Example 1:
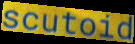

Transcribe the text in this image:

scutoid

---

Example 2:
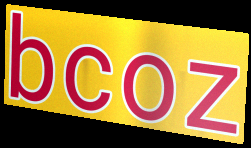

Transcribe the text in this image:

bcoz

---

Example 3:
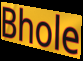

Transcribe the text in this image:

Bhole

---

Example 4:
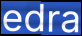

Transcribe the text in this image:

edra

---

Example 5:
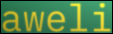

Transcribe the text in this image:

aweli